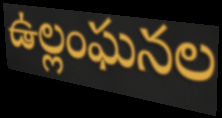
ఉల్లంఘనల